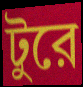
টুরে